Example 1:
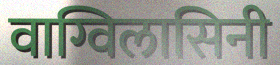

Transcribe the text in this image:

वाग्विलासिनी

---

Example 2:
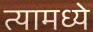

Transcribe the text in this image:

त्यामध्ये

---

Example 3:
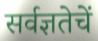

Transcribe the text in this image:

सर्वज्ञतेचें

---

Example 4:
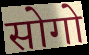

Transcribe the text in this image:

सोगो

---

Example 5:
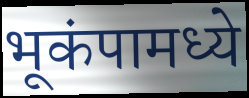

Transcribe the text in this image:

भूकंपामध्ये